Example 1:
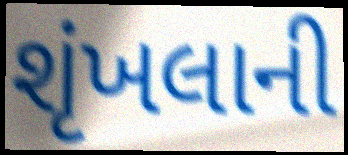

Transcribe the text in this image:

શૃંખલાની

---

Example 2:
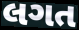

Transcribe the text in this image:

લગત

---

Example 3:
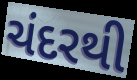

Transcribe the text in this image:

ચંદરથી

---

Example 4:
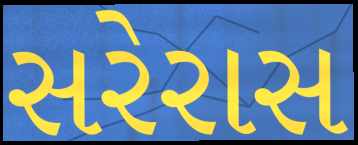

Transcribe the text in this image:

સરેરાસ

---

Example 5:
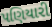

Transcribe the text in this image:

પણિયારી